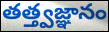
తత్త్వజ్ఞానం